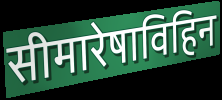
सीमारेषाविहिन